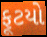
ફૂટયો